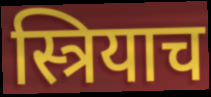
स्त्रियाच